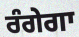
ਰੰਗੇਗਾ